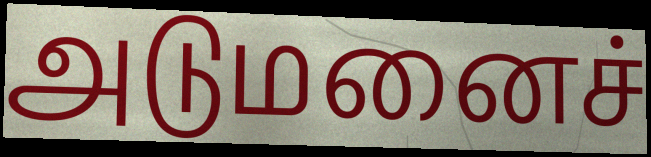
அடுமனைச்